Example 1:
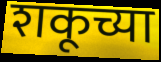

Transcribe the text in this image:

शकूच्या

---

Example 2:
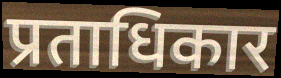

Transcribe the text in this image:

प्रताधिकार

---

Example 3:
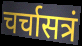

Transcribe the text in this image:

चर्चासत्रं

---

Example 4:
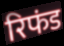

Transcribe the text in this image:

रिफंड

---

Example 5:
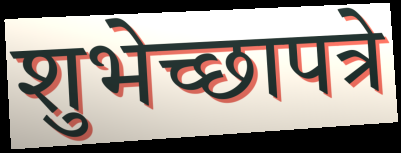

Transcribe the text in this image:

शुभेच्छापत्रे